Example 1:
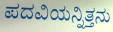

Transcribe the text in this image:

ಪದವಿಯನ್ನಿತ್ತನು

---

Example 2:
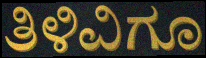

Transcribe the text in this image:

ತಿಳಿವಿಗೂ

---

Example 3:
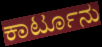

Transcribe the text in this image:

ಕಾರ್ಟೂನು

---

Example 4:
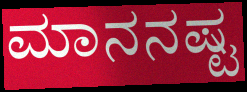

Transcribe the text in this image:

ಮಾನನಷ್ಟ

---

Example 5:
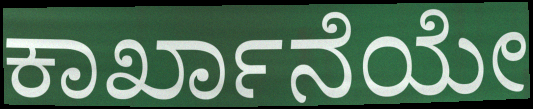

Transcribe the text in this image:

ಕಾರ್ಖಾನೆಯೇ